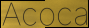
Acoca